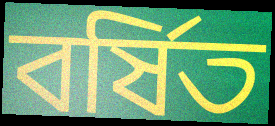
বর্ষিত